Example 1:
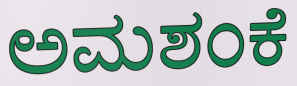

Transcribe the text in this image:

ಅಮಶಂಕೆ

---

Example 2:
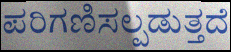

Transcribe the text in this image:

ಪರಿಗಣಿಸಲ್ಪಡುತ್ತದೆ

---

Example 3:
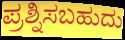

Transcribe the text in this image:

ಪ್ರಶ್ನಿಸಬಹುದು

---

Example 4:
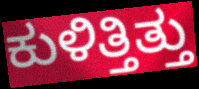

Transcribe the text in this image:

ಕುಳಿತ್ತಿತ್ತು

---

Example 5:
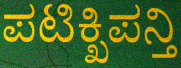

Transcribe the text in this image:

ಪಟಿಕ್ಖಿಪನ್ತಿ